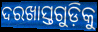
ଦରଖାସ୍ତଗୁଡ଼ିକୁ